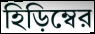
হিড়িম্বের